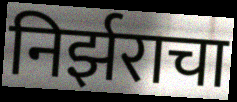
निर्झराचा